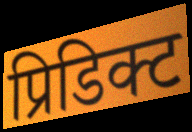
प्रिडिक्ट